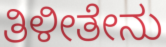
ತಿಳೀತೇನು